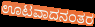
ಊಟವಾದನಂತರ